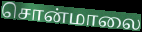
சொன்மாலை